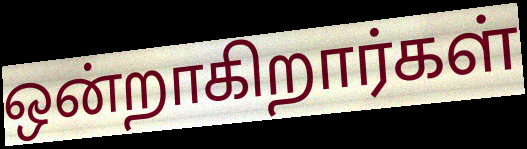
ஒன்றாகிறார்கள்